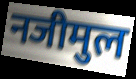
नजीमुल